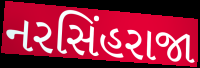
નરસિંહરાજા